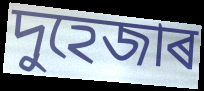
দুহেজাৰ